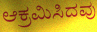
ಆಕ್ರಮಿಸಿದವು